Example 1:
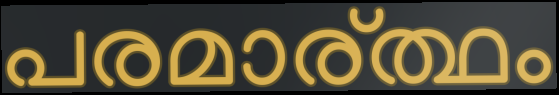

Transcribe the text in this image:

പരമാര്ത്ഥം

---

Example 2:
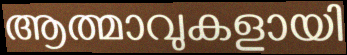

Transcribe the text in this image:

ആത്മാവുകളായി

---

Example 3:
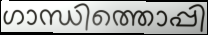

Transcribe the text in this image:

ഗാന്ധിത്തൊപ്പി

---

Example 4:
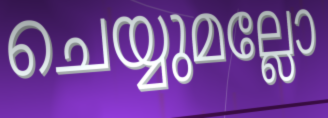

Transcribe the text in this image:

ചെയ്യുമല്ലോ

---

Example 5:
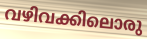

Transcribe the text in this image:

വഴിവക്കിലൊരു